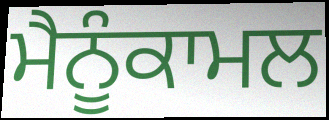
ਮੈਨੂੰਕਾਮਲ